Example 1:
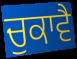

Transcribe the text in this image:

ਚੁਕਾਵੈ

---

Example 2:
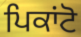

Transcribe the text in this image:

ਪਿਕਾਂਟੋ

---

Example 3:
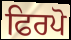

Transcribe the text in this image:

ਫਿਰਪੋ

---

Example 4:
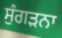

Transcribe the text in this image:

ਸੁੰਗੜਨਾ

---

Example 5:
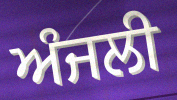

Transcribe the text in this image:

ਅੰਜਲੀ